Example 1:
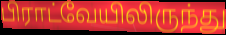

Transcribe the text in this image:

பிராட்வேயிலிருந்து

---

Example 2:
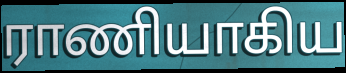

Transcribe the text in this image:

ராணியாகிய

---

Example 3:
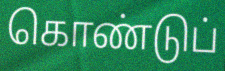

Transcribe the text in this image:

கொண்டுப்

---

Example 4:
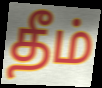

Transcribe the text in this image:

தீம்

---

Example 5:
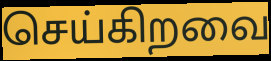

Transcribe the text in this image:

செய்கிறவை